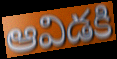
ఆవిడకి